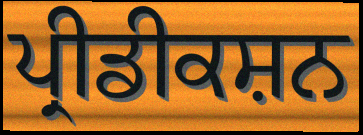
ਪ੍ਰੀਡੀਕਸ਼ਨ